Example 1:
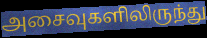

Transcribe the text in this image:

அசைவுகளிலிருந்து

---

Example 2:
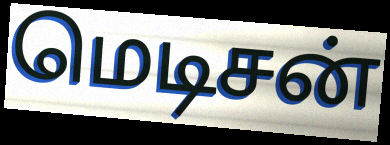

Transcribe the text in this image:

மெடிசன்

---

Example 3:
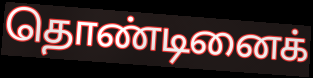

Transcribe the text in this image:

தொண்டினைக்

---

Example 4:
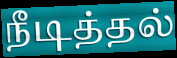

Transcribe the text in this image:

நீடித்தல்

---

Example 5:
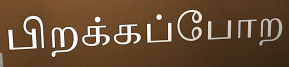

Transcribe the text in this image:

பிறக்கப்போற